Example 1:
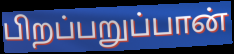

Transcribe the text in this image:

பிறப்பறுப்பான்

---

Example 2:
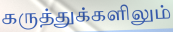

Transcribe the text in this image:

கருத்துக்களிலும்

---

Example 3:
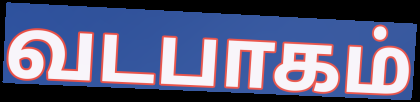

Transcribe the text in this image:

வடபாகம்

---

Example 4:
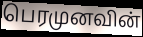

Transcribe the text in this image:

பெரமுனவின்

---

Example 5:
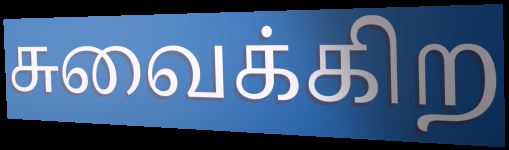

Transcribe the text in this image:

சுவைக்கிற